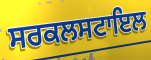
ਸਰਕਲਸਟਾਇਲ